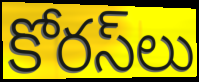
కోరస్‌లు